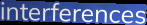
interferences